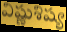
విష్ణుశిష్య